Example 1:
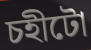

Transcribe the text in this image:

চহীটো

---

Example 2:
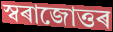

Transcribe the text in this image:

স্বৰাজোত্তৰ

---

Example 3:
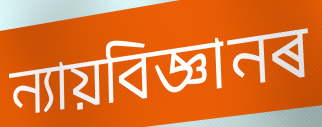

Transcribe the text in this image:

ন্যায়বিজ্ঞানৰ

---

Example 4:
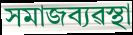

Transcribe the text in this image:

সমাজব্যৱস্থা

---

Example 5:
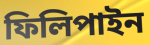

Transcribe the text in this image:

ফিলিপাইন